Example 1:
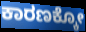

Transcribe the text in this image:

ಕಾರಣಕ್ಕೋ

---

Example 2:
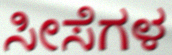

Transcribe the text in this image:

ಸೀಸೆಗಳ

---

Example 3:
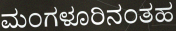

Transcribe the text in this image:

ಮಂಗಳೂರಿನಂತಹ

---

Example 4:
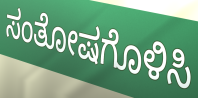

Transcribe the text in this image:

ಸಂತೋಷಗೊಳಿಸಿ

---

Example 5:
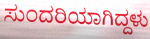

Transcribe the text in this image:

ಸುಂದರಿಯಾಗಿದ್ದಳು